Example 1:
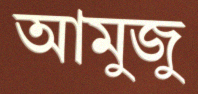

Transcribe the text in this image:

আমুজু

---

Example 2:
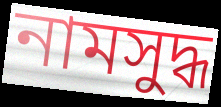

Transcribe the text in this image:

নামসুদ্ধ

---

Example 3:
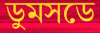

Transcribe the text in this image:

ডুমসডে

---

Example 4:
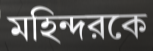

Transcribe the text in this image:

মহিন্দরকে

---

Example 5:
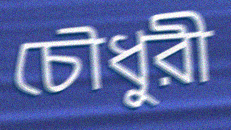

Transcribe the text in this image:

চৌধুরী